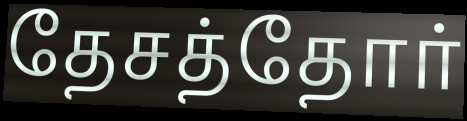
தேசத்தோர்